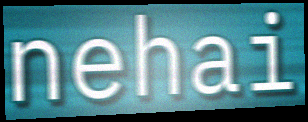
nehai